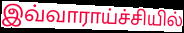
இவ்வாராய்ச்சியில்